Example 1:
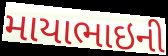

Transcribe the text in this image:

માયાભાઇની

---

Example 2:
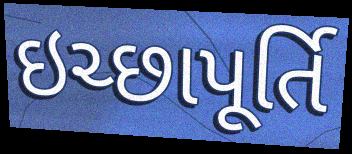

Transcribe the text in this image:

ઇચ્છાપૂર્તિ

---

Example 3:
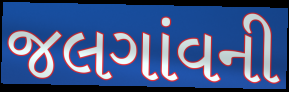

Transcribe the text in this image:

જલગાંવની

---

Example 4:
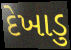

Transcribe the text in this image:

દેખાડુ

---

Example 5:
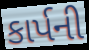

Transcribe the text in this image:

કાર્પની